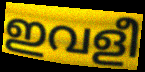
ഇവളീ